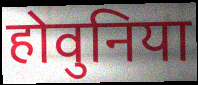
होवुनिया